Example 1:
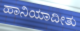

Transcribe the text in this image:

ಹಾನಿಯಾದೀತು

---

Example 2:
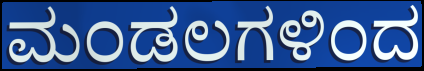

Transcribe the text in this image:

ಮಂಡಲಗಳಿಂದ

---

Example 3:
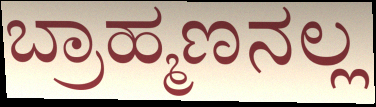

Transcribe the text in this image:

ಬ್ರಾಹ್ಮಣನಲ್ಲ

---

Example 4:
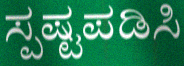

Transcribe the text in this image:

ಸ್ಪಷ್ಟಪಡಿಸಿ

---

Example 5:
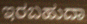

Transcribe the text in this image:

ಇರಬಹುದಾ